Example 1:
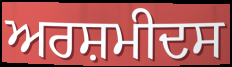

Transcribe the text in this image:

ਅਰਸ਼ਮੀਦਸ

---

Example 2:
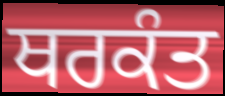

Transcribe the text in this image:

ਥਰਕੰਤ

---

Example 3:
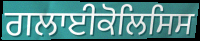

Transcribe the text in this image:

ਗਲਾਈਕੋਲਿਸਿਸ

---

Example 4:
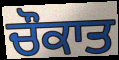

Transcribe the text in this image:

ਚੌਕਾਤ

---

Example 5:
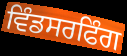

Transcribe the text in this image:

ਵਿੰਡਸਰਫਿੰਗ